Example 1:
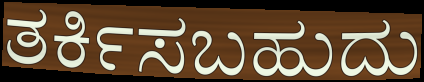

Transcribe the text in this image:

ತರ್ಕಿಸಬಹುದು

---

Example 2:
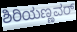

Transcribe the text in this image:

ಶಿರಿಯಣ್ಣವರ್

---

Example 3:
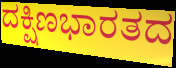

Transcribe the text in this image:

ದಕ್ಷಿಣಭಾರತದ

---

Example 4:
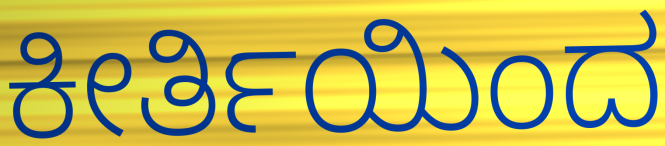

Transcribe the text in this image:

ಕೀರ್ತಿಯಿಂದ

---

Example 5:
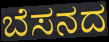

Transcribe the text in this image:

ಬೆಸನದ